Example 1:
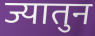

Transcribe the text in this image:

ज्यातुन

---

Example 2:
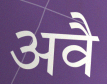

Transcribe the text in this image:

अवै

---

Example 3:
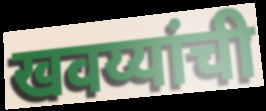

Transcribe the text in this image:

खवय्यांची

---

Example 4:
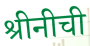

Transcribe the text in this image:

श्रीनीची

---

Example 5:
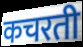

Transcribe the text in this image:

कचरती